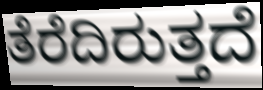
ತೆರೆದಿರುತ್ತದೆ